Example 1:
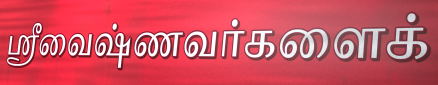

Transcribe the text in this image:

ஸ்ரீவைஷ்ணவர்களைக்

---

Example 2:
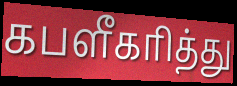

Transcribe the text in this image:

கபளீகரித்து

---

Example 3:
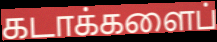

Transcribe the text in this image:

கடாக்களைப்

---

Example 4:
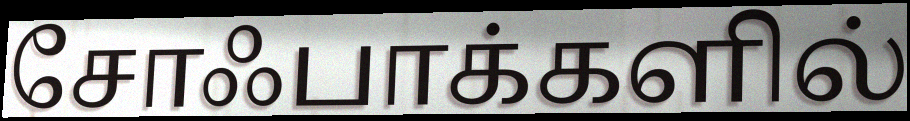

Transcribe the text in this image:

சோஃபாக்களில்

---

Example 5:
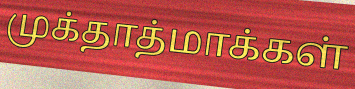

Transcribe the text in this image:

முக்தாத்மாக்கள்